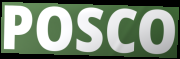
POSCO